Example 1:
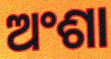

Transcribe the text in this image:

ଅଂଶା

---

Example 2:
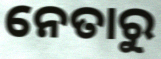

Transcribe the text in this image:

ନେତାରୁ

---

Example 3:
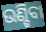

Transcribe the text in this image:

ଉଣ୍ଡିବା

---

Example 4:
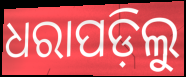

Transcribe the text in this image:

ଧରାପଡ଼ିଲୁ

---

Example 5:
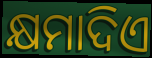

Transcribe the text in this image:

କ୍ଷମାଦିଏ